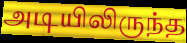
அடியிலிருந்த